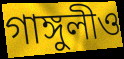
গাঙ্গুলীও